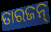
ତାରଜନ୍